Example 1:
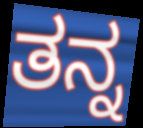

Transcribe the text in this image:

ತನ್ನ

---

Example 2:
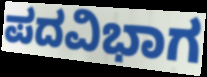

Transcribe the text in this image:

ಪದವಿಭಾಗ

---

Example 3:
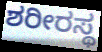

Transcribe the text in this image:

ಶರೀರಸ್ಥ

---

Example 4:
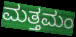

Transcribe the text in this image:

ಮತ್ತಮಂ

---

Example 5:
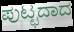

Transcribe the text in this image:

ಪುಟ್ಟದಾದ